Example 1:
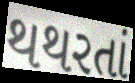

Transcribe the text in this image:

થથરતાં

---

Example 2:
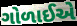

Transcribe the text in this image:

ગોળાઈએ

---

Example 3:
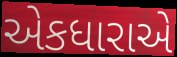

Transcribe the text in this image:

એકધારાએ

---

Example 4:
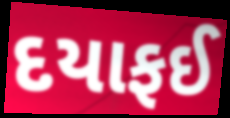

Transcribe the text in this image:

દયાફઈ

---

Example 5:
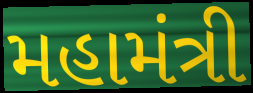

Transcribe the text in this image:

મહામંત્રી